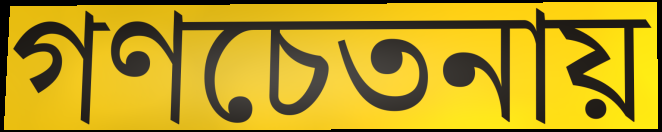
গণচেতনায়